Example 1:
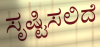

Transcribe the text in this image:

ಸೃಷ್ಟಿಸಲಿದೆ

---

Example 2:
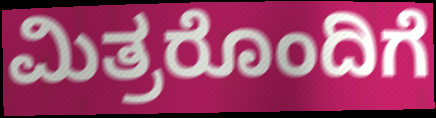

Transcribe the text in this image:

ಮಿತ್ರರೊಂದಿಗೆ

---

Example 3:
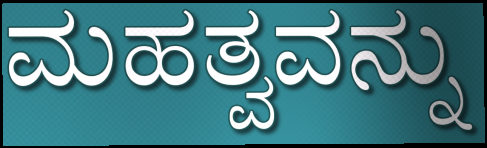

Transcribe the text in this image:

ಮಹತ್ವವನ್ನು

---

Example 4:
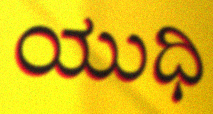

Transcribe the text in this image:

ಯುಧಿ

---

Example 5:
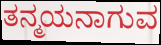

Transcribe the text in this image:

ತನ್ಮಯನಾಗುವ